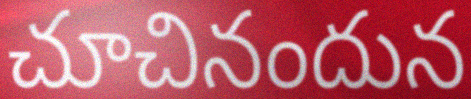
చూచినందున